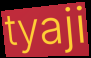
tyaji